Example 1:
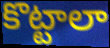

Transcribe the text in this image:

కొట్టాలా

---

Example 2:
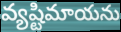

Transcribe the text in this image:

వ్యష్టిమాయను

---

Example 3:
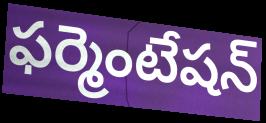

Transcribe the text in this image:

ఫర్మెంటేషన్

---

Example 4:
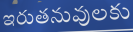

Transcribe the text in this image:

ఇరుతనువులకు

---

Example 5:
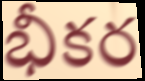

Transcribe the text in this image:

భీకర